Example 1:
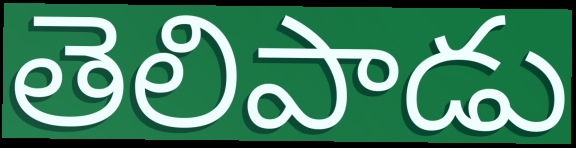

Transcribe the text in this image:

తెలిపాడు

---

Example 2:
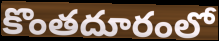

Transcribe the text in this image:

కొంతదూరంలో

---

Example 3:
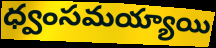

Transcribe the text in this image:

ధ్వంసమయ్యాయి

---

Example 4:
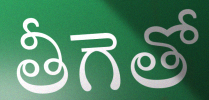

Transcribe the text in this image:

తీగెతో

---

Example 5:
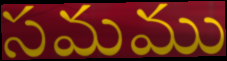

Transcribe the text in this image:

సమము